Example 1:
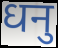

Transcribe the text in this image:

धनु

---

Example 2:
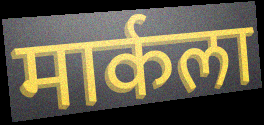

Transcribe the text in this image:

मार्कला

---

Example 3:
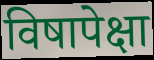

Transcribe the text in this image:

विषापेक्षा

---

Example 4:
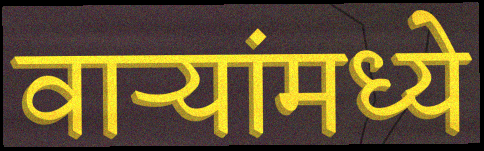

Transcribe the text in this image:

वाऱ्यांमध्ये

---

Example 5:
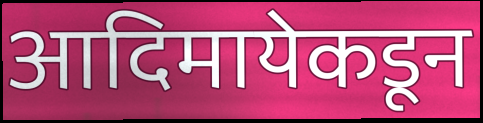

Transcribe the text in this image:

आदिमायेकडून